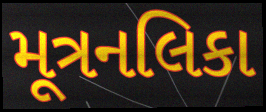
મૂત્રનલિકા